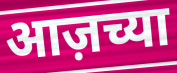
आज़च्या